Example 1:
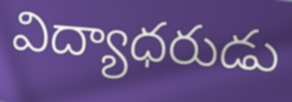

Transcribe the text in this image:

విద్యాధరుడు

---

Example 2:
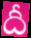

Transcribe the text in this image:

దీ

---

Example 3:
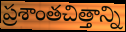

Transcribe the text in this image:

ప్రశాంతచిత్తాన్ని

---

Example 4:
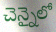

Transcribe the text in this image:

చెన్నైలో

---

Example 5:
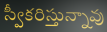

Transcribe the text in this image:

స్వీకరిస్తున్నావు